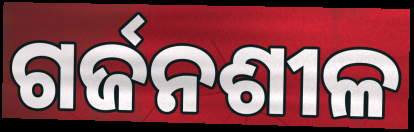
ଗର୍ଜନଶୀଳ